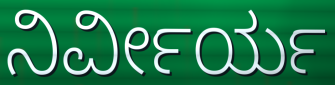
ನಿರ್ವೀರ್ಯ